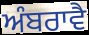
ਅੰਬਰਾਵੈ